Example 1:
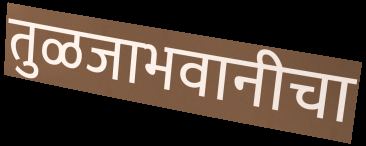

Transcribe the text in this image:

तुळजाभवानीचा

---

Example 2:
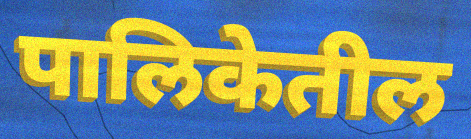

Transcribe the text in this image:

पालिकेतील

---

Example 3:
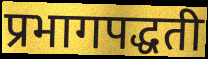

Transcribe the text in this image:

प्रभागपद्धती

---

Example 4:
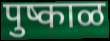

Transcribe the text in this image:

पुष्काळ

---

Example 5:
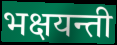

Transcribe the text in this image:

भक्षयन्ती